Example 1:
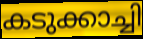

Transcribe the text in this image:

കടുക്കാച്ചി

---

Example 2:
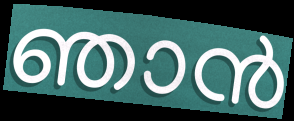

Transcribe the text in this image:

ഞാൻ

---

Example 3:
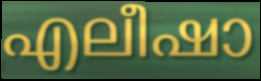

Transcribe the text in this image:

എലീഷാ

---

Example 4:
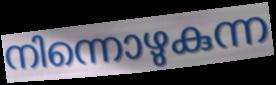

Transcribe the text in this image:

നിന്നൊഴുകുന്ന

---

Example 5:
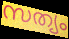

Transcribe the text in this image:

സത്യം